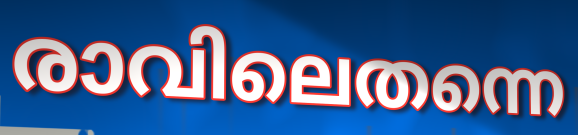
രാവിലെതന്നെ